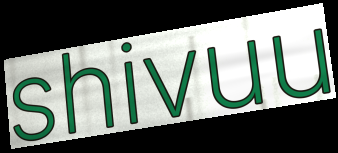
shivuu